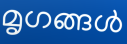
മൃഗങ്ങൾ